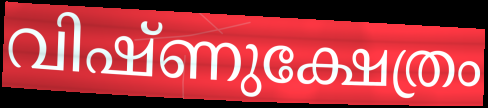
വിഷ്ണുക്ഷേത്രം